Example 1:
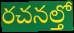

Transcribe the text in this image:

రచనల్తో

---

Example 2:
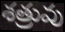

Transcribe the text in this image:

శత్రువు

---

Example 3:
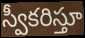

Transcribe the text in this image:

స్వీకరిస్తూ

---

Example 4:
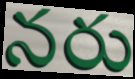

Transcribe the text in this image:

నరు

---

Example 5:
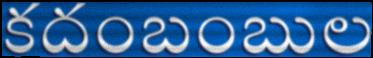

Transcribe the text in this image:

కదంబంబుల